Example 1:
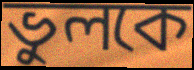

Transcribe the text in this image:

ভুলকে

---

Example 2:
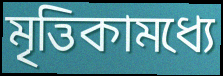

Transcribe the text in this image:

মৃত্তিকামধ্যে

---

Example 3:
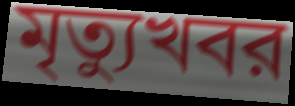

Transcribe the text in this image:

মৃত্যুখবর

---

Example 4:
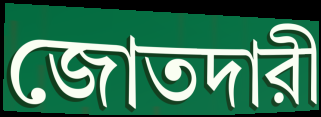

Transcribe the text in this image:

জোতদারী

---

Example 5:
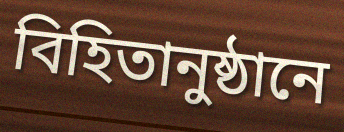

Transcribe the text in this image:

বিহিতানুষ্ঠানে